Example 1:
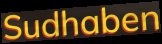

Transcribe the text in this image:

Sudhaben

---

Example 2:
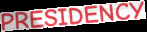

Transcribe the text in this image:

PRESIDENCY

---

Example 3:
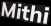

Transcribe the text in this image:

Mithi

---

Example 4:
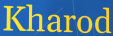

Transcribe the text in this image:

Kharod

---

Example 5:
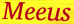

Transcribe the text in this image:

Meeus